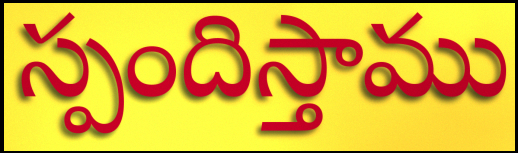
స్పందిస్తాము